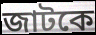
জাটকে